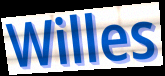
Willes